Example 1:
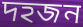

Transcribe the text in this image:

দহজন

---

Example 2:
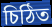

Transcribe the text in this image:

চিঠিত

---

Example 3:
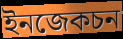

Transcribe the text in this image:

ইনজেকচন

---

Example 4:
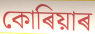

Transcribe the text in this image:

কোৰিয়াৰ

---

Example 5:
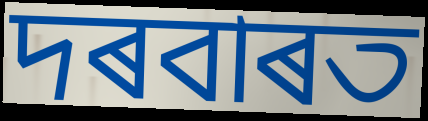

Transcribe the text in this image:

দৰবাৰত